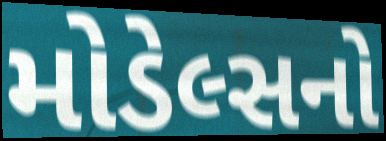
મોડેલ્સનો